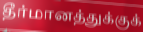
தீர்மானத்துக்குக்